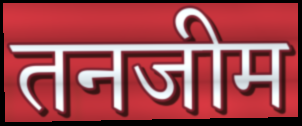
तनजीम